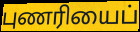
புணரியைப்